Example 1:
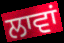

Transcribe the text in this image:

ਲਾਵਾਂ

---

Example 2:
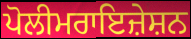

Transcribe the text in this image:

ਪੋਲੀਮਰਾਇਜ਼ੇਸ਼ਨ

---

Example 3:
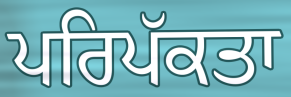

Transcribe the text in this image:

ਪਰਿਪੱਕਤਾ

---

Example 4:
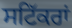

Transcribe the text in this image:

ਸਟਿੱਕਰਾਂ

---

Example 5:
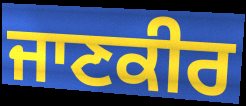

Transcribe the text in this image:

ਜਾਣਕੀਰ